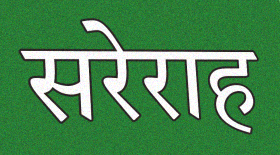
सरेराह